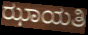
ಝಾಯತಿ